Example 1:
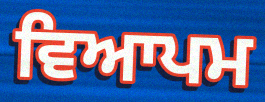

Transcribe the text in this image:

ਵਿਆਪਮ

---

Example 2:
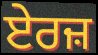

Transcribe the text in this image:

ਏਰਜ਼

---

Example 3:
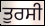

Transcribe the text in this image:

ਤੁਰਸੀ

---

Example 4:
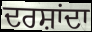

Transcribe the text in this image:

ਦਰਸ਼ਾਂਦਾ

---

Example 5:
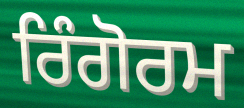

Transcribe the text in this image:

ਰਿੰਗੋਰਮ